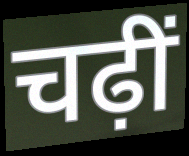
चढ़ीं